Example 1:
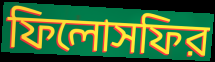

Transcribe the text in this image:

ফিলোসফির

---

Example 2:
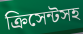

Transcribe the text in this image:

ক্রিসেন্টসহ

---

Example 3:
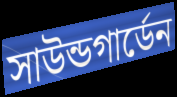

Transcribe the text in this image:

সাউন্ডগার্ডেন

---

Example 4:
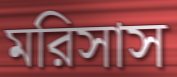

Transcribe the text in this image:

মরিসাস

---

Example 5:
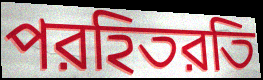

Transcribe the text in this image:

পরহিতরতি